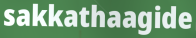
sakkathaagide